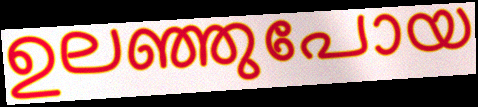
ഉലഞ്ഞുപോയ